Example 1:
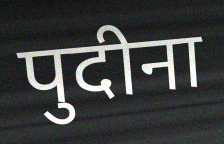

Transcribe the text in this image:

पुदीना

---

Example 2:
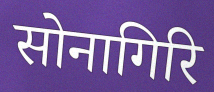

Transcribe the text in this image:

सोनागिरि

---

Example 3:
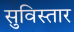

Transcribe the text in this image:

सुविस्तार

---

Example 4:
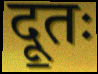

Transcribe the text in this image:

दू॒तः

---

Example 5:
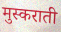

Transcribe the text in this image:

मुस्कराती